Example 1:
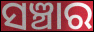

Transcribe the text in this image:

ସଞ୍ଚାର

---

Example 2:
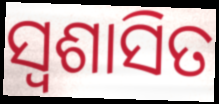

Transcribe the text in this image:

ସ୍ୱଶାସିତ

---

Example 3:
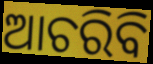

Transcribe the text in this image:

ଆଚରିବି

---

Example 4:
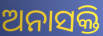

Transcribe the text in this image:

ଅନାସକ୍ତି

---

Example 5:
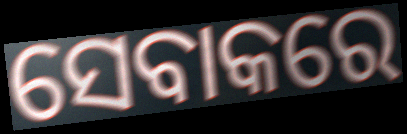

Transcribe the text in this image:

ସେବାକରେ